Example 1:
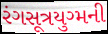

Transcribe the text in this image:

રંગસૂત્રયુગ્મની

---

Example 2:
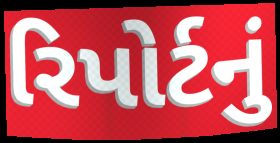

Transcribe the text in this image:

રિપોર્ટનું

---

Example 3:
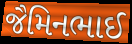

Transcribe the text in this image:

જૈમિનભાઈ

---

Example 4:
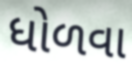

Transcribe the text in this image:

ધોળવા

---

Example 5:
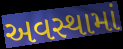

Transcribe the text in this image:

અવસ્થામાં